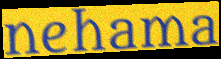
nehama